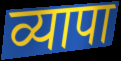
व्यापा